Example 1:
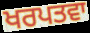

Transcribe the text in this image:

ਖਰਪਤਵਾ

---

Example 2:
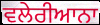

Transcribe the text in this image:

ਵਲੇਰੀਆਨਾ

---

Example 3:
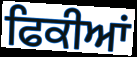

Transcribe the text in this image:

ਫਿਕੀਆਂ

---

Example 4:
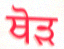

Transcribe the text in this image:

ਥੋੜ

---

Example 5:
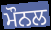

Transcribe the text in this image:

ਮੌਨਲ